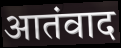
आतंवाद